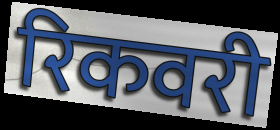
रिकवरी